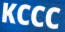
KCCC